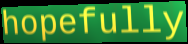
hopefully